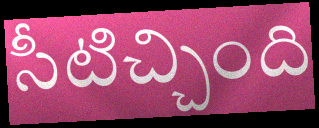
సీటిచ్చింది